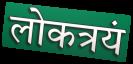
लोकत्रयं